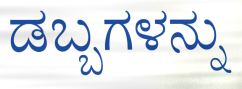
ಡಬ್ಬಗಳನ್ನು